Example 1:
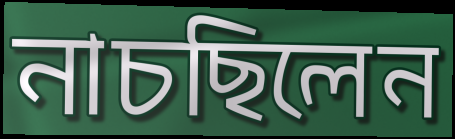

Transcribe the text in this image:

নাচছিলেন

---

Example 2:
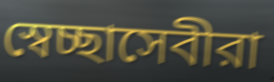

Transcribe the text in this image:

স্বেচ্ছাসেবীরা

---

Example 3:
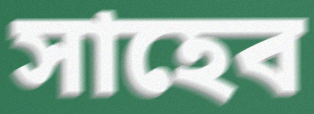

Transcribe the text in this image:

সাহেব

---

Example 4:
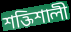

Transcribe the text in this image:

শক্তিশালী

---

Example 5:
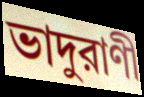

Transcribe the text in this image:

ভাদুরাণী